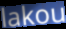
lakou